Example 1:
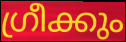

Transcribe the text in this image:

ഗ്രീക്കും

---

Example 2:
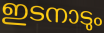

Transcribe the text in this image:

ഇടനാടും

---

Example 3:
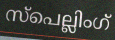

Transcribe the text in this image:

സ്പെല്ലിംഗ്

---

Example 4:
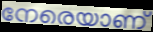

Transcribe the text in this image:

നേരെയാണ്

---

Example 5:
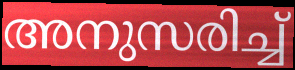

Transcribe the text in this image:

അനുസരിച്ച്